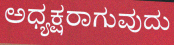
ಅಧ್ಯಕ್ಷರಾಗುವುದು